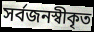
সর্বজনস্বীকৃত